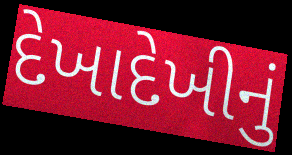
દેખાદેખીનું